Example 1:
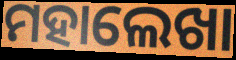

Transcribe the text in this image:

ମହାଲେଖା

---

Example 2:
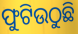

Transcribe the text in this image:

ଫୁଟିଉଠୁଛି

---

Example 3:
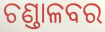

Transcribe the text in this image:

ଚଣ୍ଡାଳବର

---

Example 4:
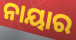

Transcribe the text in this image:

ନାୟାର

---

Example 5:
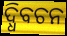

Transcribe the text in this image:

ଦ୍ଧିବଚନ